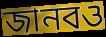
জানবও